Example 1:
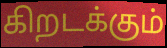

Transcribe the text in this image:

கிறடக்கும்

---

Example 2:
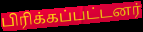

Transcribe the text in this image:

பிரிக்கப்பட்டனர்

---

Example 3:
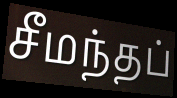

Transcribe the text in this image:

சீமந்தப்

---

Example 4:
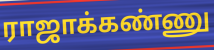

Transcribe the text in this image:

ராஜாக்கண்ணு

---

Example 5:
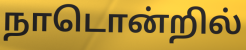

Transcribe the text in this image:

நாடொன்றில்